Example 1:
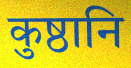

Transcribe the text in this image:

कुष्ठानि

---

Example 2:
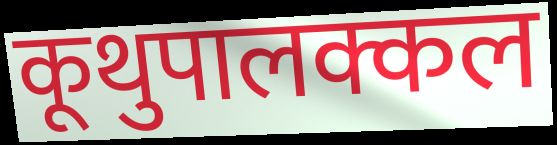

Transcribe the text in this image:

कूथुपालक्कल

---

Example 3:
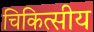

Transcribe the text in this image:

चिकित्सीय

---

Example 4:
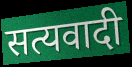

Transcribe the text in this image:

सत्यवादी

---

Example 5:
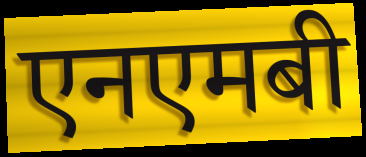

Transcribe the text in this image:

एनएमबी